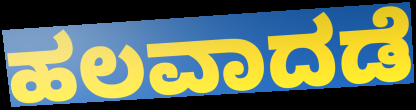
ಹಲವಾದಡೆ